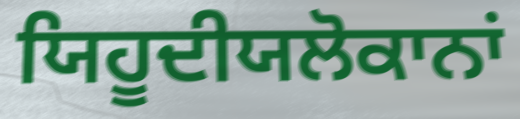
ਯਿਹੂਦੀਯਲੋਕਾਨਾਂ